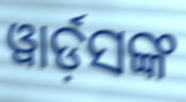
ୱାର୍ଡ଼ସଙ୍କ